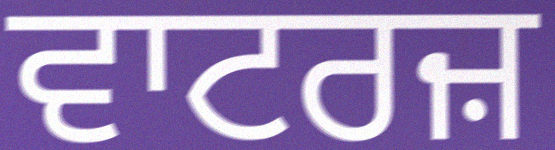
ਵਾਟਰਜ਼